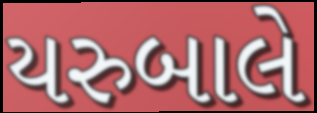
યરુબાલે